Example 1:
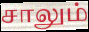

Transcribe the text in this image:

சாலும்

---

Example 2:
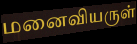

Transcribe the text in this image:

மனைவியருள்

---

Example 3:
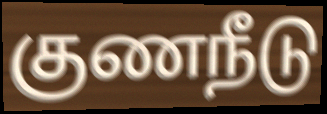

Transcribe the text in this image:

குணநீடு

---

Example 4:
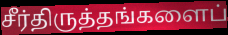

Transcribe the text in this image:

சீர்திருத்தங்களைப்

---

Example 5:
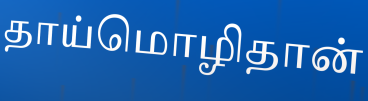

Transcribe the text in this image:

தாய்மொழிதான்